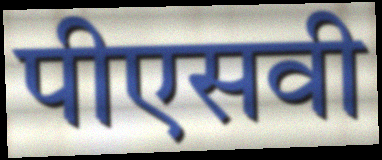
पीएसवी